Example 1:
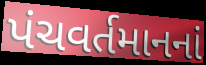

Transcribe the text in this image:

પંચવર્તમાનનાં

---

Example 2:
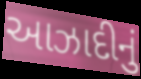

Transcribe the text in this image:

આઝાદીનું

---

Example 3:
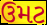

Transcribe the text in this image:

ઉમટ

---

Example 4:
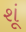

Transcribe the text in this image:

શૂં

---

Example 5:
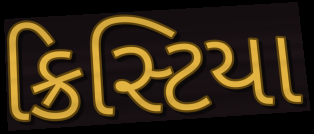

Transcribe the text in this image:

ક્રિસ્ટિયા